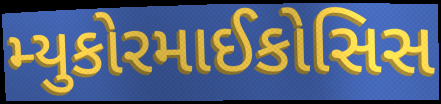
મ્યુકોરમાઈકોસિસ